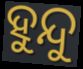
ହୁନ୍ଦୁ